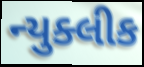
ન્યુક્લીક